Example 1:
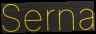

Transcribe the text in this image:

Serna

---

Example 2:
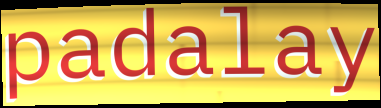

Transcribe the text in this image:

padalay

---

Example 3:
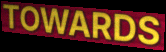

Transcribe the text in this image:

TOWARDS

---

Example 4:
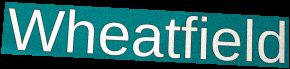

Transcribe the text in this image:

Wheatfield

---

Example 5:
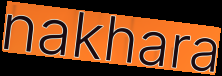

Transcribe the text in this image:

nakhara